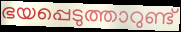
ഭയപ്പെടുത്താറുണ്ട്